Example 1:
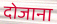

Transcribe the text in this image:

दोजाना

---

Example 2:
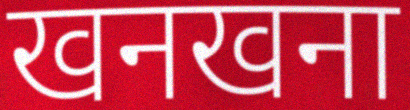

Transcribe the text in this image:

खनखना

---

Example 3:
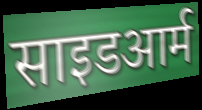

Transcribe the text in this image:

साइडआर्म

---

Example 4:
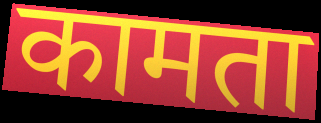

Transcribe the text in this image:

कामता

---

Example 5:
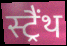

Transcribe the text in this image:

स्ट्रैंथ